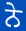
ਨੇ